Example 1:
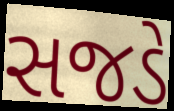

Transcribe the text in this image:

સજડે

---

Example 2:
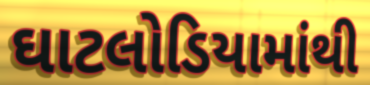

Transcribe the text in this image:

ઘાટલોડિયામાંથી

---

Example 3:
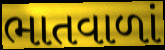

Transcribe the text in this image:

ભાતવાળાં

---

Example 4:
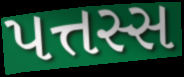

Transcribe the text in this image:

પત્તસ્સ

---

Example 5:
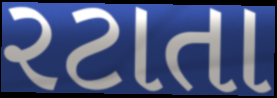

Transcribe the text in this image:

રટાતા